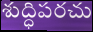
శుద్ధిపరచు